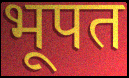
भूपत